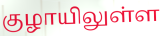
குழாயிலுள்ள